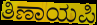
ತಿಣಾಯಪಿ